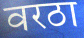
वरठा